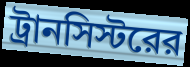
ট্রানসিস্টরের